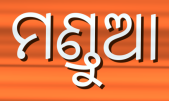
ମଣ୍ଡୁଆ